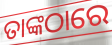
ତାଙ୍କଠାରେ